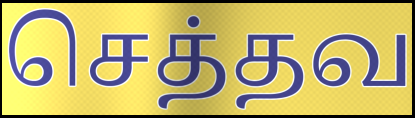
செத்தவ